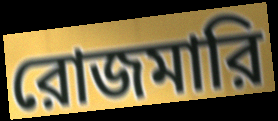
রোজমারি